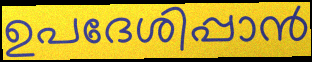
ഉപദേശിപ്പാൻ